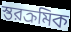
স্তরক্রমিক